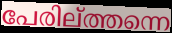
പേരില്ത്തന്നെ